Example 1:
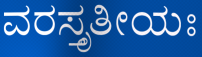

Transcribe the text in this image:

ವರಸ್ತೃತೀಯಃ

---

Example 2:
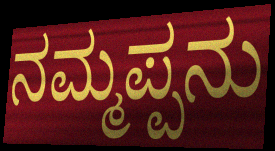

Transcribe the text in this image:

ನಮ್ಮಪ್ಪನು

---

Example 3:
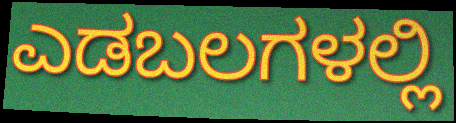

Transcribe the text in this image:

ಎಡಬಲಗಳಲ್ಲಿ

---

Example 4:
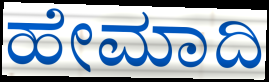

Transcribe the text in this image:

ಹೇಮಾದಿ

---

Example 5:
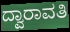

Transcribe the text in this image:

ದ್ವಾರಾವತಿ